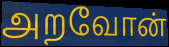
அறவோன்